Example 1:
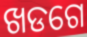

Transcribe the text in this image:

ଖଡଗେ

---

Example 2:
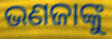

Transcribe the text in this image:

ଭଣଜାଙ୍କୁ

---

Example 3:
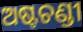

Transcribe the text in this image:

ଅଷ୍ଟଚଣ୍ଡୀ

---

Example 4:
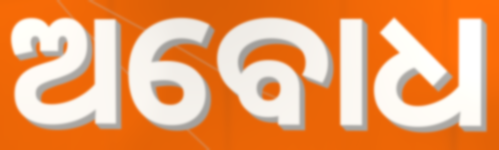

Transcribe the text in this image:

ଅବୋଧ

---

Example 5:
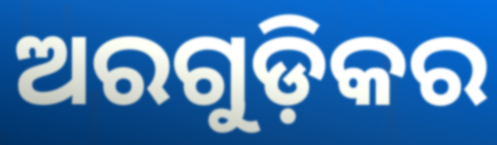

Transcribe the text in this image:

ଅରଗୁଡ଼ିକର